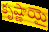
కృష్ణాయై